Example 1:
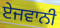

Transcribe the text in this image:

ਏਜਵਾਨੀ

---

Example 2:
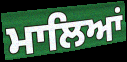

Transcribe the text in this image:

ਮਾਲਿਆਂ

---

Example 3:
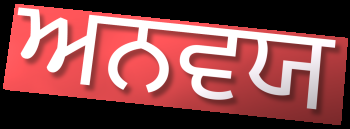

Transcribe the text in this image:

ਅਨਵਯ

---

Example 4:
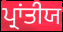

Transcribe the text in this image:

ਪ੍ਰਾਂਤੀਯ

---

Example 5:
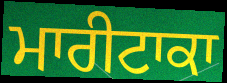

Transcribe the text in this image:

ਮਾਰੀਟਾਕਾ